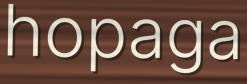
hopaga